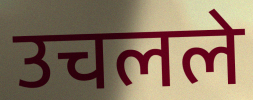
उचलले